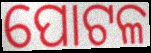
ପୋଟଳ